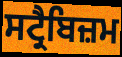
ਸਟ੍ਰੈਬਿਜ਼ਮ